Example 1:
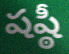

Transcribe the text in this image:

షష్ఠీ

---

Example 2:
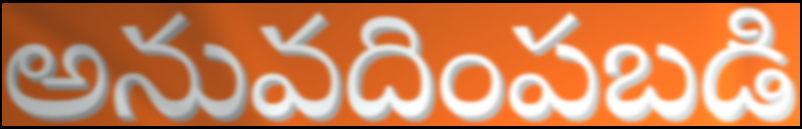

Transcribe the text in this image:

అనువదింపబడి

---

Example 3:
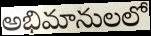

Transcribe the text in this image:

అభిమానులలో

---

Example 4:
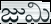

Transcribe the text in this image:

జుమి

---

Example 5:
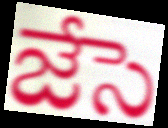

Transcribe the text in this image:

జేసె